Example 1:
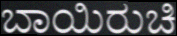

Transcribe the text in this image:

ಬಾಯಿರುಚಿ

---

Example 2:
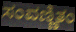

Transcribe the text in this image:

ಸಂವಣ್ಣಿತಂ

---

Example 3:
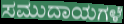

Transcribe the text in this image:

ಸಮುದಾಯಗಳೆ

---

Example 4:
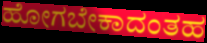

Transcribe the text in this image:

ಹೋಗಬೇಕಾದಂತಹ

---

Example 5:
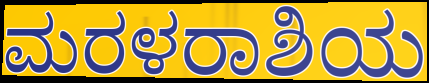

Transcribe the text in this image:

ಮರಳರಾಶಿಯ